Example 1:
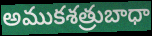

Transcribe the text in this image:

అముకశత్రుబాధా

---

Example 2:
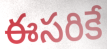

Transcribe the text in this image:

ఈసరికే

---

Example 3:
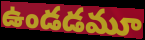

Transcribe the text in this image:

ఉండడమూ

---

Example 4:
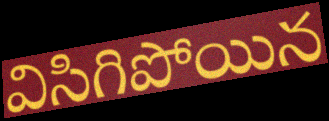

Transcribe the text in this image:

విసిగిపోయిన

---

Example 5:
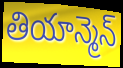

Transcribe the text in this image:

తియాన్మెన్